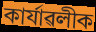
কাৰ্যাৱলীক